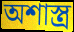
অশাস্ত্র